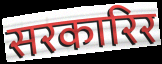
सरकारिर